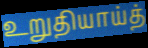
உறுதியாய்த்